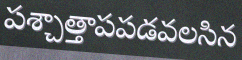
పశ్చాత్తాపపడవలసిన